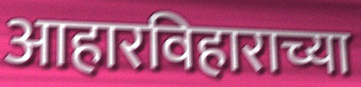
आहारविहाराच्या